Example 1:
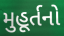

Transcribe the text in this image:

મુહૂર્તનો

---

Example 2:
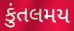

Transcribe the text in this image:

કુંતલમય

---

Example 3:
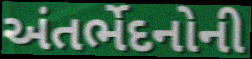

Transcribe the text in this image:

અંતર્ભેદનોની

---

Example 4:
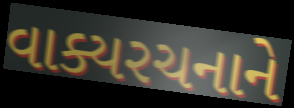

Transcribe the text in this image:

વાક્યરચનાને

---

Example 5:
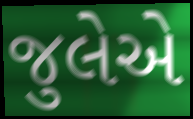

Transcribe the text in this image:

જુલેએ